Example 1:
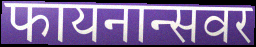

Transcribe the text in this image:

फायनान्सवर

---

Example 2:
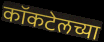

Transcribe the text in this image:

कॉकटेलच्या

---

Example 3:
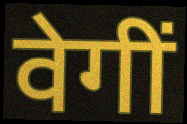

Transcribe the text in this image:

वेगीं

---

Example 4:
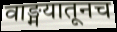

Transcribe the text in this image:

वाङ्मयातूनच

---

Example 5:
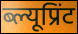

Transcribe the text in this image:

ब्ल्यूप्रिंट